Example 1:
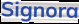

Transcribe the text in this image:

Signora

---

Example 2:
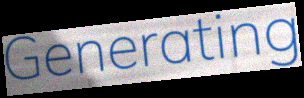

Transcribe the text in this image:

Generating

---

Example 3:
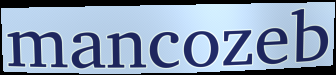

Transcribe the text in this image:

mancozeb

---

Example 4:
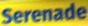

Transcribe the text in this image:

Serenade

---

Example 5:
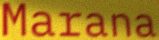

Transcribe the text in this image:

Marana